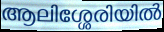
ആലിശ്ശേരിയിൽ